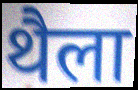
थैला